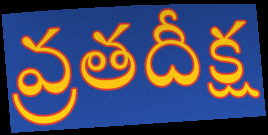
వ్రతదీక్ష